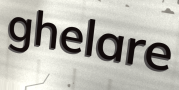
ghelare